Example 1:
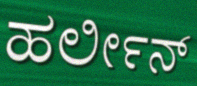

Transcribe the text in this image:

ಹರ್ಲೀನ್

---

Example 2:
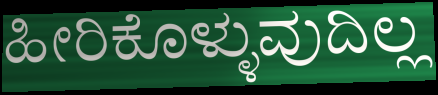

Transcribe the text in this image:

ಹೀರಿಕೊಳ್ಳುವುದಿಲ್ಲ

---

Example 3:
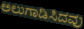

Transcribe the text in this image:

ಅಲುಗಾಡಿಸಿದವು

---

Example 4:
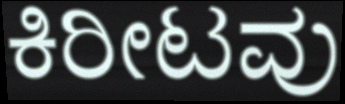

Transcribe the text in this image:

ಕಿರೀಟವು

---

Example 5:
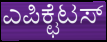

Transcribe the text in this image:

ಎಪಿಕ್ಟೆಟಸ್